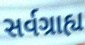
સર્વગ્રાહ્ય